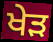
ਖੇੜ